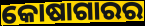
କୋଷାଗାରର